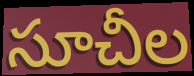
సూచీల